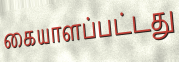
கையாளப்பட்டது